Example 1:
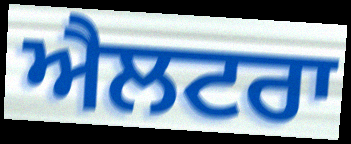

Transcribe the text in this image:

ਐਲਟਰਾ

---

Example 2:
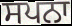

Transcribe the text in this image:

ਸਪਨਾ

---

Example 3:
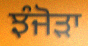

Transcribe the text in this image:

ਝੰਜੋੜਾ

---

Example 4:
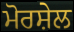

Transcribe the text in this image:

ਮੋਰਸ਼ੇਲ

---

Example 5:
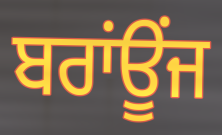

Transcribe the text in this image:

ਬਰਾਂਊਂਜ